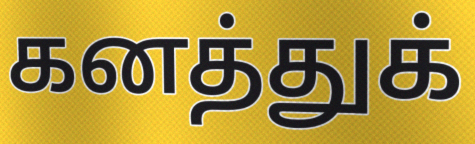
கனத்துக்